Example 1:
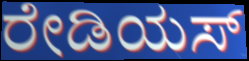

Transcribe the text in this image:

ರೇಡಿಯಸ್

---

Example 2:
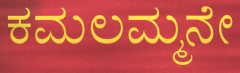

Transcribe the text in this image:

ಕಮಲಮ್ಮನೇ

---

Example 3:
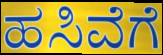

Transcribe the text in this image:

ಹಸಿವೆಗೆ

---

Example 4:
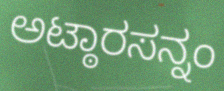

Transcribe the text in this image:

ಅಟ್ಠಾರಸನ್ನಂ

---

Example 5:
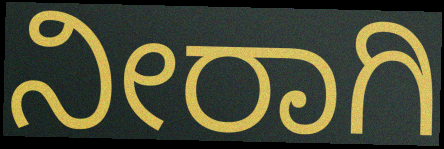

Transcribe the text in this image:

ನೀರಾಗಿ